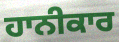
ਹਾਨੀਕਾਰ